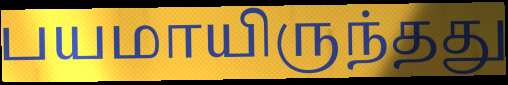
பயமாயிருந்தது